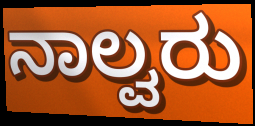
ನಾಲ್ವರು